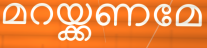
മറയ്ക്കണമേ